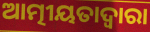
ଆତ୍ମୀୟତାଦ୍ଵାରା